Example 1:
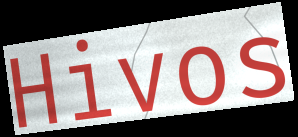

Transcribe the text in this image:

Hivos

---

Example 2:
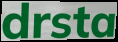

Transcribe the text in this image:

drsta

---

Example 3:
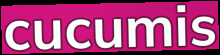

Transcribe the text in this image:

cucumis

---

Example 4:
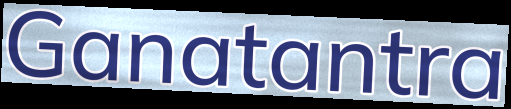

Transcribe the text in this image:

Ganatantra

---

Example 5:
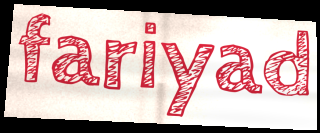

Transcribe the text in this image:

fariyad